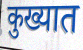
कुख्यात